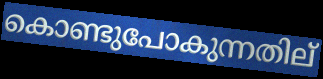
കൊണ്ടുപോകുന്നതില്